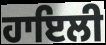
ਹਾਇਲੀ